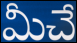
మీచే